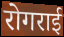
रोगराई